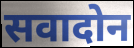
सवादोन